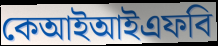
কেআইআইএফবি